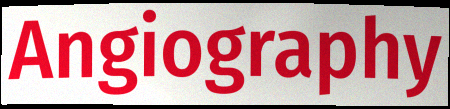
Angiography